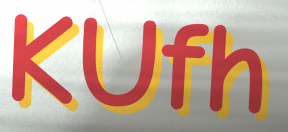
KUfh